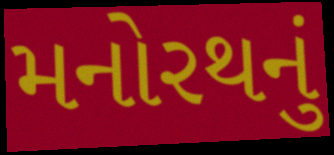
મનોરથનું